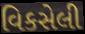
વિકસેલી